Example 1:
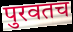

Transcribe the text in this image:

पुरवतच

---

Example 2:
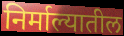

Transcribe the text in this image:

निर्माल्यातील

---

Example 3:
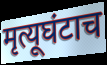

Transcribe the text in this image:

मृत्यूघंटाच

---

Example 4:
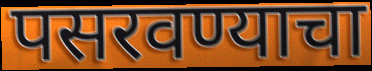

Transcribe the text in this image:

पसरवण्याचा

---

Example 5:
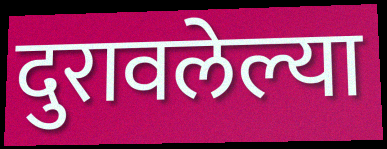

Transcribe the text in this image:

दुरावलेल्या